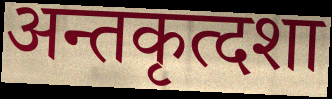
अन्तकृत्दशा